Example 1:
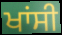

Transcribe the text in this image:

ਖਾਂਸੀ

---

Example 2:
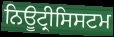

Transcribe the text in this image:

ਨਿਊਟ੍ਰੀਸਿਸਟਮ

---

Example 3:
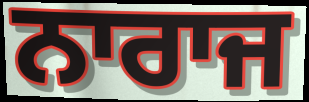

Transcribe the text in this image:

ਨਾਰਾਜ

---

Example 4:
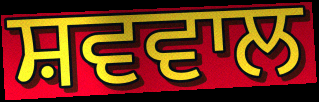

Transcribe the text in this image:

ਸ਼ਵਵਾਲ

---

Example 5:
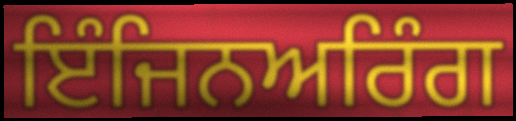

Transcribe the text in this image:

ਇੰਜਿਨਅਰਿੰਗ